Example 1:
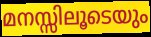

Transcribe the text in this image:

മനസ്സിലൂടെയും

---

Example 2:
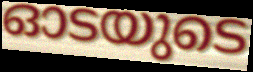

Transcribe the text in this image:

ഓടയുടെ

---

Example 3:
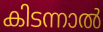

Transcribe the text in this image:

കിടന്നാൽ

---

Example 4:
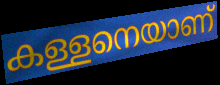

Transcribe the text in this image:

കള്ളനെയാണ്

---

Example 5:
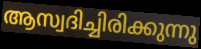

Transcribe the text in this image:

ആസ്വദിച്ചിരിക്കുന്നു